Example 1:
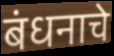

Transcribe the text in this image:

बंधनाचे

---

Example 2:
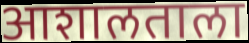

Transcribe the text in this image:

आशालताला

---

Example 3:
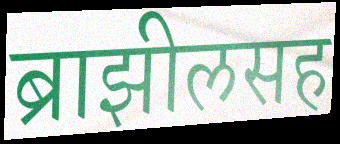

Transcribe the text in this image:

ब्राझीलसह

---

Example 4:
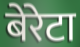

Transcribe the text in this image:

बेरेटा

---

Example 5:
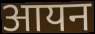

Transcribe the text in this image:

आयन